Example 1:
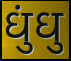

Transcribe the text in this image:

धुंधु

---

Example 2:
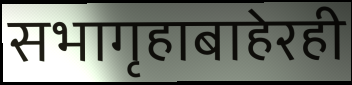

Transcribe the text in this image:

सभागृहाबाहेरही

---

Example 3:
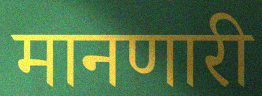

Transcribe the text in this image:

मानणारी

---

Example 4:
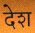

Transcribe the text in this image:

देश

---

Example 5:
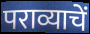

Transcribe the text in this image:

पराव्याचें